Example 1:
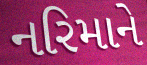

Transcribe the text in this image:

નરિમાને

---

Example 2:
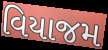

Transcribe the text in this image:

વિયાજમ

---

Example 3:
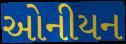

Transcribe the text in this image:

ઓનીયન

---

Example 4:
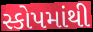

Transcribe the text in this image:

સ્કોપમાંથી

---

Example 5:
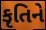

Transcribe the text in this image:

કૃતિને